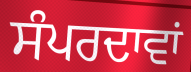
ਸੰਪਰਦਾਵਾਂ